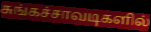
சுங்கச்சாவடிகளில்